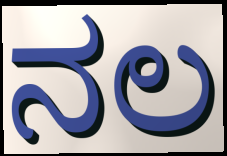
ನಲ